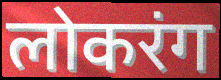
लोकरंग